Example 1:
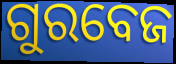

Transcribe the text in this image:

ଗୁରବେଜ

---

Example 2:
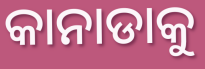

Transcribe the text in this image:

କାନାଡାକୁ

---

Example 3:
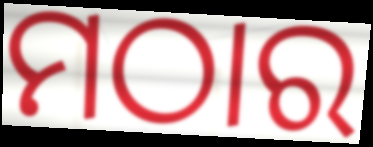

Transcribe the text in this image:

ମଠାର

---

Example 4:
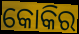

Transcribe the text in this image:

କୋକିର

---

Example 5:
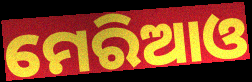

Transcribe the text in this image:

ମେରିଆଓ